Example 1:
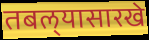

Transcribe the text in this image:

तबल्यासारखे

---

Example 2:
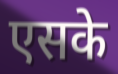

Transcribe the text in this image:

एसके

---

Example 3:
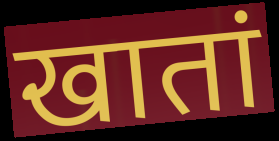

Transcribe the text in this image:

खातां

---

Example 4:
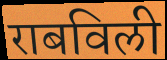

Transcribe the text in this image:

राबविली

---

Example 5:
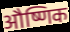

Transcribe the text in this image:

औष्णिक